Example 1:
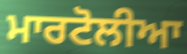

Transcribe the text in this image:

ਮਾਰਟੋਲੀਆ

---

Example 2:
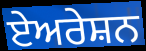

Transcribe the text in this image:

ਏਅਰੇਸ਼ਨ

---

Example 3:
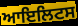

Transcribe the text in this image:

ਆਇਲਿਟਸ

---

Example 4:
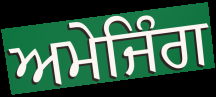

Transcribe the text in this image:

ਅਮੇਜਿੰਗ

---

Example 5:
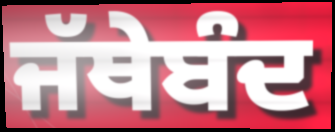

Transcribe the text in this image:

ਜੱਥੇਬੰਦ